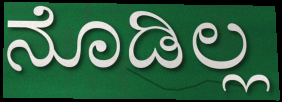
ನೊಡಿಲ್ಲ